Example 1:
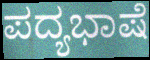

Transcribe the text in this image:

ಪದ್ಯಭಾಷೆ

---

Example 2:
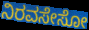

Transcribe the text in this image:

ನಿರವಸೇಸೋ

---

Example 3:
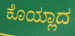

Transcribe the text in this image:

ಕೊಯ್ಲಾದ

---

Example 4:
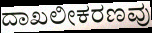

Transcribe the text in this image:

ದಾಖಲೀಕರಣವು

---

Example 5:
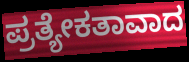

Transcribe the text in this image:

ಪ್ರತ್ಯೇಕತಾವಾದ